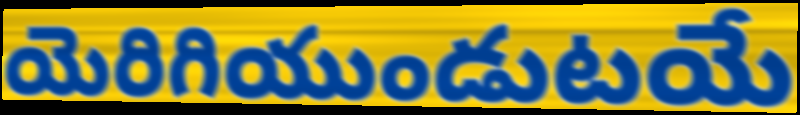
యెరిగియుండుటయే